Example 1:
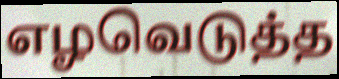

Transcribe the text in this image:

எழவெடுத்த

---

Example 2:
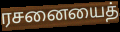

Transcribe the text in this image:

ரசனையைத்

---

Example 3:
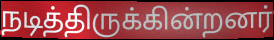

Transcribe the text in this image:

நடித்திருக்கின்றனர்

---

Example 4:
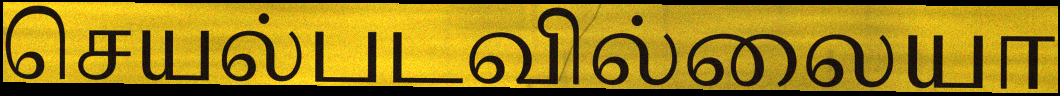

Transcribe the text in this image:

செயல்படவில்லையா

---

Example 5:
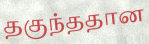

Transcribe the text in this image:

தகுந்ததான